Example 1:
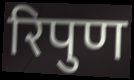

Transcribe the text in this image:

रिपुण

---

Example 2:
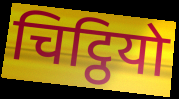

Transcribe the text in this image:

चिट्ठियो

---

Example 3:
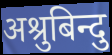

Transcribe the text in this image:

अश्रुबिन्दु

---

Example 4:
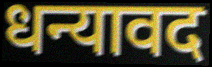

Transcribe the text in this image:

धन्यावद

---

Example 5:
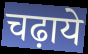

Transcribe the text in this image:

चढ़ाये